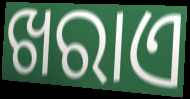
ଖରାଏ